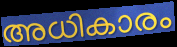
അധികാരം